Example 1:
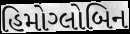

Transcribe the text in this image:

હિમોગ્લોબિન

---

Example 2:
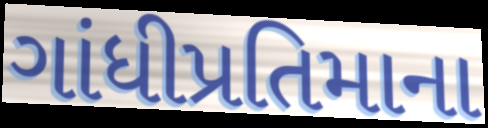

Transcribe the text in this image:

ગાંધીપ્રતિમાના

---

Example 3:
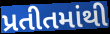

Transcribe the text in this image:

પ્રતીતમાંથી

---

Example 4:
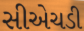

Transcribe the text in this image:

સીએચડી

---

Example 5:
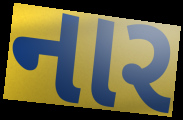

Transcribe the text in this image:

નાર